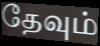
தேவும்